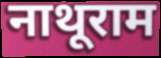
नाथूराम